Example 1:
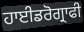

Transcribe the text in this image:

ਹਾਈਡਰੋਗ੍ਰਾਫੀ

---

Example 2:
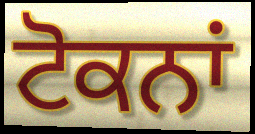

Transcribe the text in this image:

ਟੋਕਨਾਂ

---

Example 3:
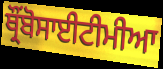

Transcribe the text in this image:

ਥ੍ਰੌਂਬੋਸਾਈਟੀਮੀਆ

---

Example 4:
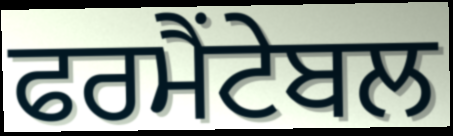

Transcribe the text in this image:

ਫਰਮੈਂਟੇਬਲ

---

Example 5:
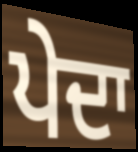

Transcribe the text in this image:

ਪੇਦਾ